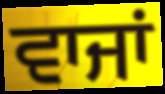
ਵਾਜਾਂ